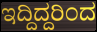
ಇದ್ದಿದ್ದರಿಂದ